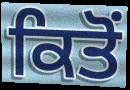
ਕਿਤੋਂ